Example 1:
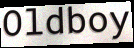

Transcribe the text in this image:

Oldboy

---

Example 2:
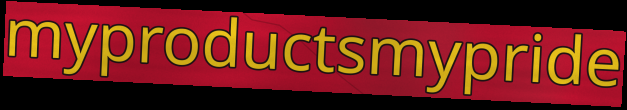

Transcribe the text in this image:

myproductsmypride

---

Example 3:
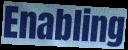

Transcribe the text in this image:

Enabling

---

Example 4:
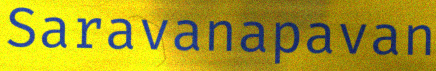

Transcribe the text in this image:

Saravanapavan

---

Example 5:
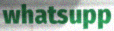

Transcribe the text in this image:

whatsupp